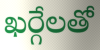
ఖర్గేలతో